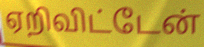
ஏறிவிட்டேன்